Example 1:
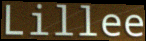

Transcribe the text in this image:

Lillee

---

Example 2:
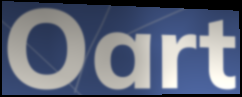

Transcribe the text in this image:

Oart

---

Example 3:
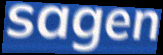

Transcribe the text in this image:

sagen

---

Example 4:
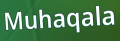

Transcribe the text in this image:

Muhaqala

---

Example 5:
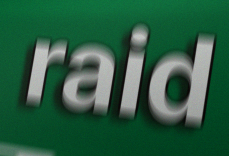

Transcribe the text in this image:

raid